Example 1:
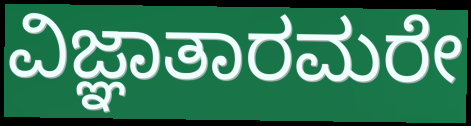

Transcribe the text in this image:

ವಿಜ್ಞಾತಾರಮರೇ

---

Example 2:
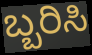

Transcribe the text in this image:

ಬ್ಬರಿಸಿ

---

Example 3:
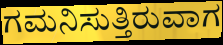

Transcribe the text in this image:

ಗಮನಿಸುತ್ತಿರುವಾಗ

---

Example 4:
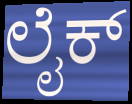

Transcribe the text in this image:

ಲೈಕ್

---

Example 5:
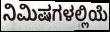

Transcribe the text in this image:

ನಿಮಿಷಗಳಲ್ಲಿಯೆ